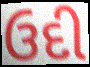
ઉદી